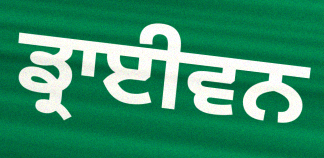
ਡ੍ਰਾਈਵਨ